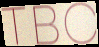
TBC